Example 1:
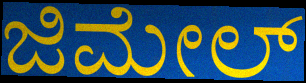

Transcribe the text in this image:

ಜಿಮೇಲ್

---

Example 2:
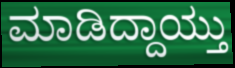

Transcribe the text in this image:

ಮಾಡಿದ್ದಾಯ್ತು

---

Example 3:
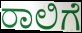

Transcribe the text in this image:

ರಾಲಿಗೆ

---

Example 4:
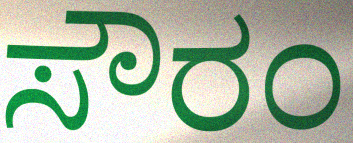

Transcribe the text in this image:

ಸೌರಂ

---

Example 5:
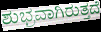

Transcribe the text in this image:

ಶುಭ್ರವಾಗಿರುತ್ತದೆ